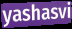
yashasvi